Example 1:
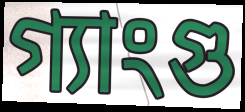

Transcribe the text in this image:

গ্যাংগু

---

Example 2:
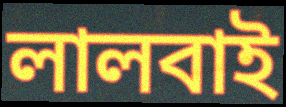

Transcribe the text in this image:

লালবাই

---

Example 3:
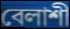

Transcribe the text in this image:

বেলাশী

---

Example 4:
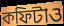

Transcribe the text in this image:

কফিটাও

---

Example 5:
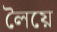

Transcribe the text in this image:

লৈয়ে